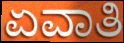
ಏವಾತಿ